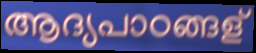
ആദ്യപാഠങ്ങള്